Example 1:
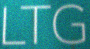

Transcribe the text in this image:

LTG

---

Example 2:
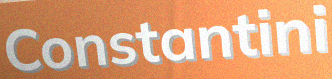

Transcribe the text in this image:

Constantini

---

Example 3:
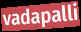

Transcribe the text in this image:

vadapalli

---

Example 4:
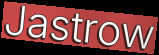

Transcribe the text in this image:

Jastrow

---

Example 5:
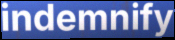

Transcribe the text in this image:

indemnify